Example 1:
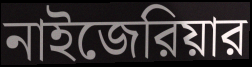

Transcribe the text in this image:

নাইজেরিয়ার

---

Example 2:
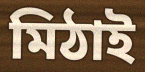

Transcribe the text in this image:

মিঠাই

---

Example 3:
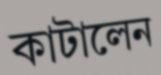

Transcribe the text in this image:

কাটালেন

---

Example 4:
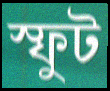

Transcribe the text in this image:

স্ফুট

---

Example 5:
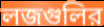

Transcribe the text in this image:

লজগুলির